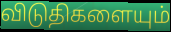
விடுதிகளையும்